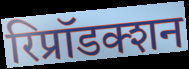
रिप्रॉडक्शन